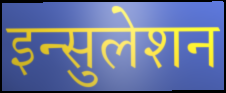
इन्सुलेशन